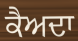
ਕੈਅਦਾ